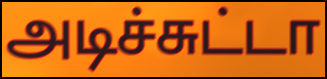
அடிச்சுட்டா